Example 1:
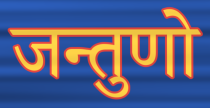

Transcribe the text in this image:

जन्तुणो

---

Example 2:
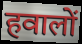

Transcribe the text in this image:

हवालों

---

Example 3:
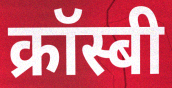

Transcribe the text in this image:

क्रॉस्बी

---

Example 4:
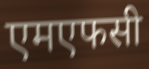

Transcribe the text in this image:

एमएफसी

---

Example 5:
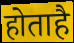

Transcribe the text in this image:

होताहै